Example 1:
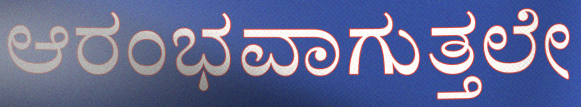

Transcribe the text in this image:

ಆರಂಭವಾಗುತ್ತಲೇ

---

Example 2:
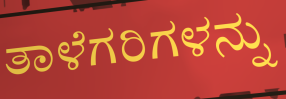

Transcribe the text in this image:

ತಾಳೆಗರಿಗಳನ್ನು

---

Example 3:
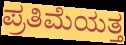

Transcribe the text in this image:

ಪ್ರತಿಮೆಯತ್ತ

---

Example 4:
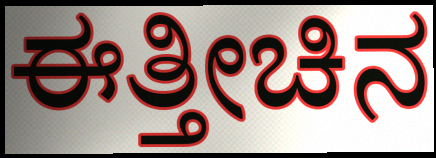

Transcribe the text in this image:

ಈತ್ತೀಚಿನ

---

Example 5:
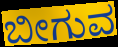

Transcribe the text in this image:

ಬೀಗುವ